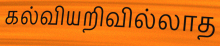
கல்வியறிவில்லாத